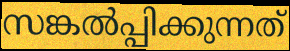
സങ്കൽപ്പിക്കുന്നത്